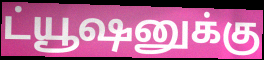
ட்யூஷனுக்கு